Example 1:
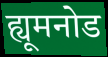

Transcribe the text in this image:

ह्यूमनोड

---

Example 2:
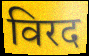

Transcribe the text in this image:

विरद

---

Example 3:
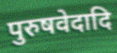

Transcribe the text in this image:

पुरुषवेदादि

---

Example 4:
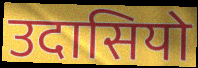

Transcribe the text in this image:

उदासियो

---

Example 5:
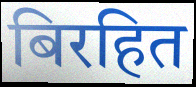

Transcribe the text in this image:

बिरहित